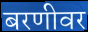
बरणीवर